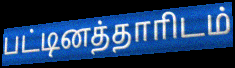
பட்டினத்தாரிடம்